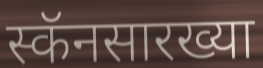
स्कॅनसारख्या